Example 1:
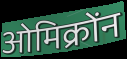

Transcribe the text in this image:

ओमिक्रोंन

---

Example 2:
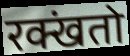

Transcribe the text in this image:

रक्खंतो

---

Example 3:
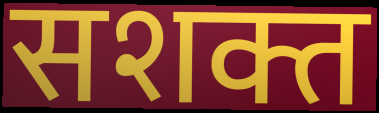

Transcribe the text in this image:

सशक्‍त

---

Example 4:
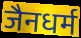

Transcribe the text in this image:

जैनधर्म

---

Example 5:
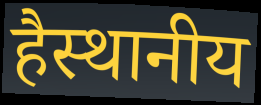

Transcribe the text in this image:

हैस्थानीय